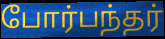
போர்பந்தர்